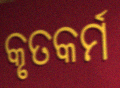
କୃତକର୍ମ